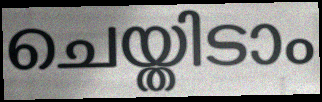
ചെയ്തിടാം